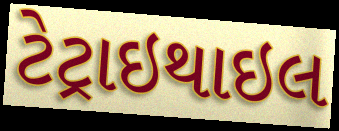
ટેટ્રાઇથાઇલ